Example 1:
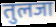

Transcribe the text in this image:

तुलजा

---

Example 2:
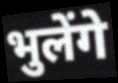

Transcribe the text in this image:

भुलेंगे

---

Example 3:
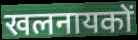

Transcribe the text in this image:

खलनायकों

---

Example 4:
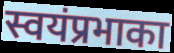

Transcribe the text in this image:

स्वयंप्रभाका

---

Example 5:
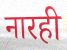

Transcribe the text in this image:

नारही